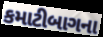
કમાટીબાગના